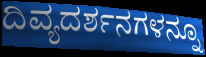
ದಿವ್ಯದರ್ಶನಗಳನ್ನೂ